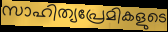
സാഹിത്യപ്രേമികളുടെ